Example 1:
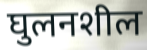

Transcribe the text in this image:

घुलनशील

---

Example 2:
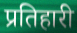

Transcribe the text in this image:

प्रतिहारी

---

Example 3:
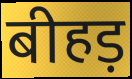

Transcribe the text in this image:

बीहड़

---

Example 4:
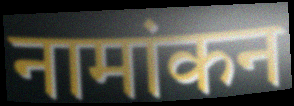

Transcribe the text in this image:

नामांकन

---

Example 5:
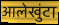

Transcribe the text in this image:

आलेखुंटा